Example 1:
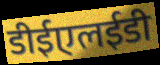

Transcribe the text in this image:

डीईएलईडी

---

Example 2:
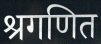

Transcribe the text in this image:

श्रगणित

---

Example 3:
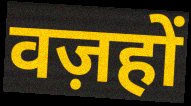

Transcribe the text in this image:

वज़हों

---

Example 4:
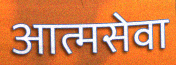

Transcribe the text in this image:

आत्मसेवा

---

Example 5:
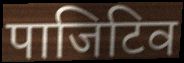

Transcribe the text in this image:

पाजिटिव